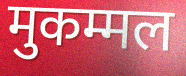
मुकम्मल